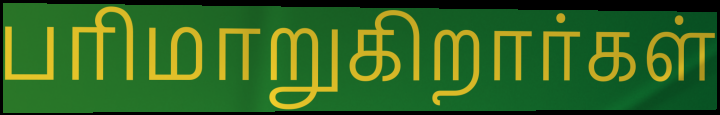
பரிமாறுகிறார்கள்